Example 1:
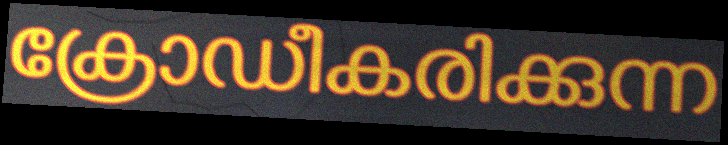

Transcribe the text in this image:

ക്രോഡീകരിക്കുന്ന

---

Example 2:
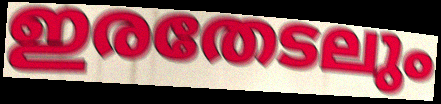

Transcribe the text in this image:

ഇരതേടലും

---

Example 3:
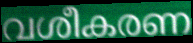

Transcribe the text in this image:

വശീകരണ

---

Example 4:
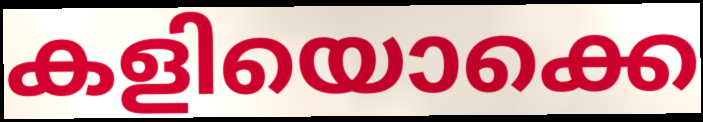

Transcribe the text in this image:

കളിയൊക്കെ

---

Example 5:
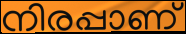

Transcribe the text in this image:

നിരപ്പാണ്